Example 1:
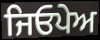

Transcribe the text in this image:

ਜਿਓਪੇਅ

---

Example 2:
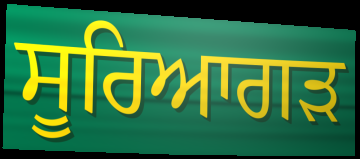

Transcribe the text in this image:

ਸੂਰਿਆਗੜ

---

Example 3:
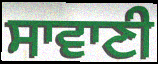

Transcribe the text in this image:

ਸਾਵਾਣੀ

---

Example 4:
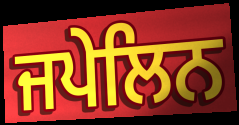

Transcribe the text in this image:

ਜਪੇਲਿਨ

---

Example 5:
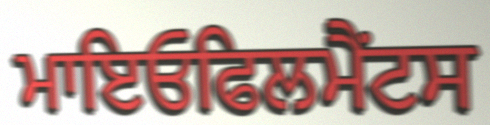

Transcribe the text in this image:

ਮਾਇਓਫਿਲਮੈਂਟਸ